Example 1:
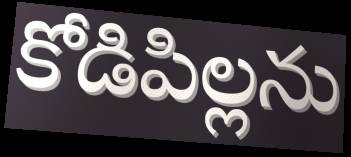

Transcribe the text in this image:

కోడిపిల్లను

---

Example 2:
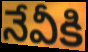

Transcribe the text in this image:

నేవీకి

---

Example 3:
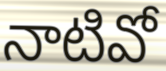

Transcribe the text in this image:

నాటివో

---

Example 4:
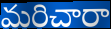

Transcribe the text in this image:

మరిచారా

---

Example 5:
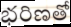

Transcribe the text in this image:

భరిణతో